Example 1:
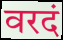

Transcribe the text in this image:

वरदं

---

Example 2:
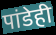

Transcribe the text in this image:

पांडेही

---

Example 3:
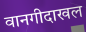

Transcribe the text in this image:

वानगीदाखल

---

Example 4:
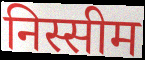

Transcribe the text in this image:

निस्सीम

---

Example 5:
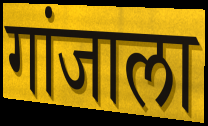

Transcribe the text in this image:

गांजाला